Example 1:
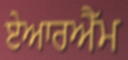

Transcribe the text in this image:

ਏਆਰਐੱਮ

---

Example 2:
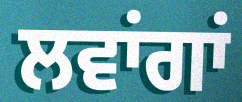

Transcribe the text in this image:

ਲਵਾਂਗਾਂ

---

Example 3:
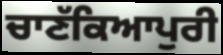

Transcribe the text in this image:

ਚਾਣੱਕਿਆਪੁਰੀ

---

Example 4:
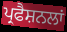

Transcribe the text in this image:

ਪ੍ਰਫੈਸ਼ਨਲਾਂ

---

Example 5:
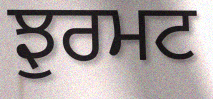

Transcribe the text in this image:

ਝੁਰਮਟ